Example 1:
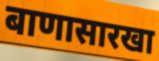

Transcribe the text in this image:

बाणासारखा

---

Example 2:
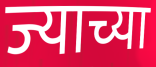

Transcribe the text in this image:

ज्याच्या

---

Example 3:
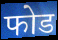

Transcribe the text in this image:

फोड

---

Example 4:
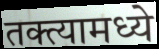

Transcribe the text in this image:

तक्‍त्यामध्ये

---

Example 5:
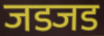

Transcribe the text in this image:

जडजड